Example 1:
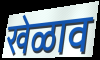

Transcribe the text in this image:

खेळाव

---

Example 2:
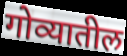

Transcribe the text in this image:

गोव्यातील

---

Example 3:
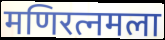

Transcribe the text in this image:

मणिरत्नमला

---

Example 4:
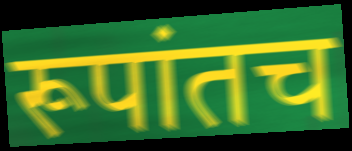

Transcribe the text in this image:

रूपांतच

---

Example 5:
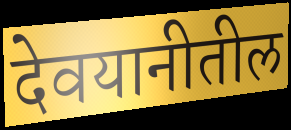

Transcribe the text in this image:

देवयानीतील